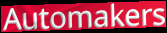
Automakers